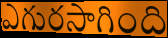
ఎగురసాగింది